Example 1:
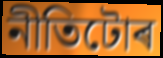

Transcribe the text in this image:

নীতিটোৰ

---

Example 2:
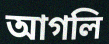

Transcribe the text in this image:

আগলি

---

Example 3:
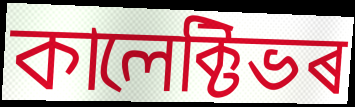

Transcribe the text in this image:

কালেক্টিভৰ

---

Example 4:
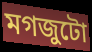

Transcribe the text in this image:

মগজুটো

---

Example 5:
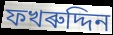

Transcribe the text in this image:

ফখৰুদ্দিন